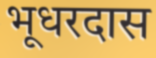
भूधरदास